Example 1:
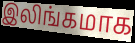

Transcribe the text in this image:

இலிங்கமாக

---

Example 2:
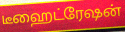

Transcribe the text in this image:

டீஹைட்ரேஷன்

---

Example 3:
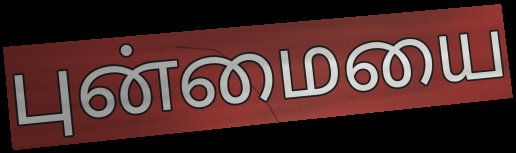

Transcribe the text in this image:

புன்மையை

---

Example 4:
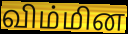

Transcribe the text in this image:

விம்மின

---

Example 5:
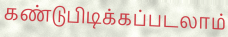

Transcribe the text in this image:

கண்டுபிடிக்கப்படலாம்